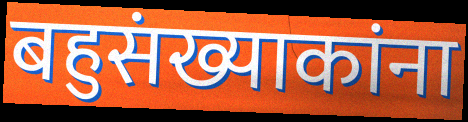
बहुसंख्याकांना